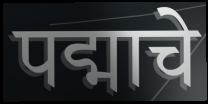
पद्माचे